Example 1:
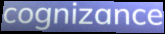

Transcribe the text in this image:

cognizance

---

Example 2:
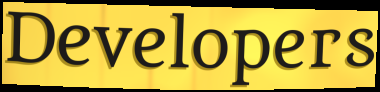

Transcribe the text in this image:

Developers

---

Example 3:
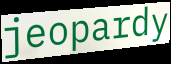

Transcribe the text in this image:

jeopardy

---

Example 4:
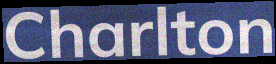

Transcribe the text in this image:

Charlton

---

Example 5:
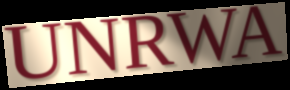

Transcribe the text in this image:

UNRWA